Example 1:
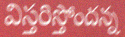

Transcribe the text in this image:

విస్తరిస్తోందన్న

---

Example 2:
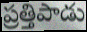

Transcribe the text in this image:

ప్రత్తిపాడు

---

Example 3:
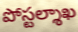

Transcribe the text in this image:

పోస్టల్శాఖ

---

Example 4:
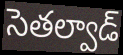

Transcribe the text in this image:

సెతల్వాడ్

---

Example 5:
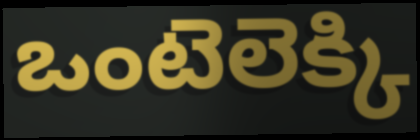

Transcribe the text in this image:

ఒంటెలెక్కి